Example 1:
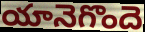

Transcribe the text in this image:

యానెగొందె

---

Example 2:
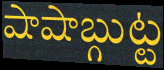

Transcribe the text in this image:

షాషాబ్గుట్ట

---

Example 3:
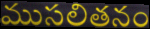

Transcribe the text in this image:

ముసలితనం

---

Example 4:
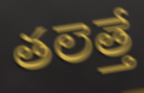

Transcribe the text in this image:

తలెత్తే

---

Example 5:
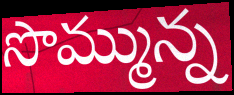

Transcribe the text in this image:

సొమ్మున్న